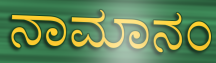
ನಾಮಾನಂ